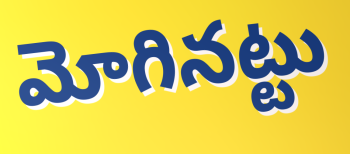
మోగినట్టు